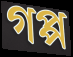
গপ্প